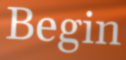
Begin